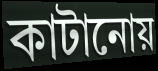
কাটানোয়